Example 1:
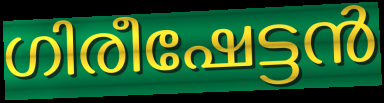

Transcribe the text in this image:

ഗിരീഷേട്ടൻ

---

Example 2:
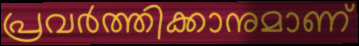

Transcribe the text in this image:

പ്രവർത്തിക്കാനുമാണ്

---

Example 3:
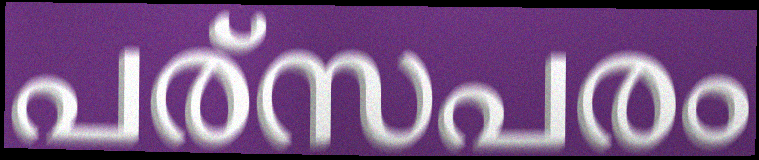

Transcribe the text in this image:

പര്സപരം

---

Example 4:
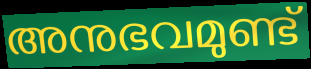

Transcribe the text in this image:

അനുഭവമുണ്ട്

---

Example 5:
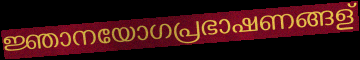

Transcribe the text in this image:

ജ്ഞാനയോഗപ്രഭാഷണങ്ങള്